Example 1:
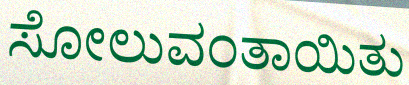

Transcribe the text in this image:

ಸೋಲುವಂತಾಯಿತು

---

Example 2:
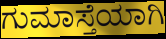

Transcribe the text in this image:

ಗುಮಾಸ್ತೆಯಾಗಿ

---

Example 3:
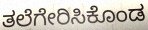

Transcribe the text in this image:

ತಲೆಗೇರಿಸಿಕೊಂಡ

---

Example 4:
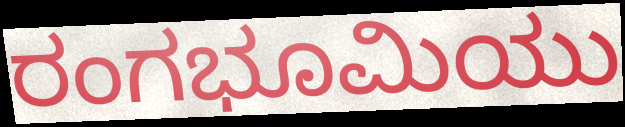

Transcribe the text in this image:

ರಂಗಭೂಮಿಯು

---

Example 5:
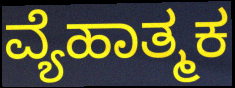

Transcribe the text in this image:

ವ್ಯೆಹಾತ್ಮಕ